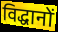
विद्धानों